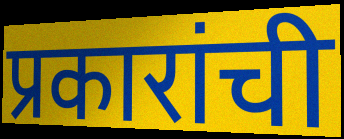
प्रकारांची